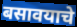
बसावयाचे